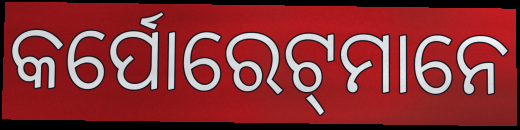
କର୍ପୋରେଟ୍‌ମାନେ